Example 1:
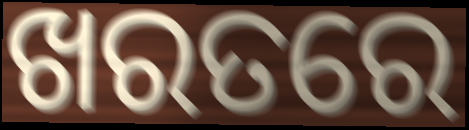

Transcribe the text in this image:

ଖରତରେ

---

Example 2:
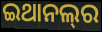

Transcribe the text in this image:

ଇଥାନଲ୍‌ର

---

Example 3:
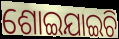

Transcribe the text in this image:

ଶୋଇଯାଇଚି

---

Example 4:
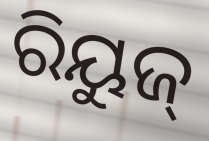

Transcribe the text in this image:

ରିୟୁଜ୍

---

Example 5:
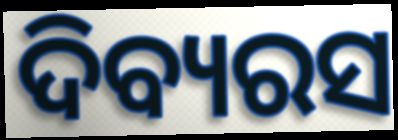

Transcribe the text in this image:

ଦିବ୍ୟରସ